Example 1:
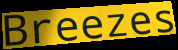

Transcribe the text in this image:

Breezes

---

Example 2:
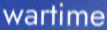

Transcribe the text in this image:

wartime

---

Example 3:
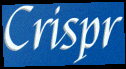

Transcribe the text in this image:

Crispr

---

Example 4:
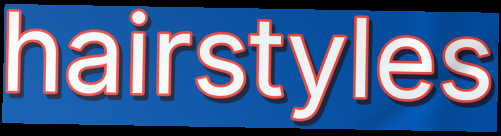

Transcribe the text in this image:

hairstyles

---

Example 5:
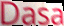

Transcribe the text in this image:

Dasa